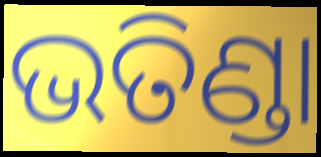
ଭତିଣ୍ଡା